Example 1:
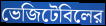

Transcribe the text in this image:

ভেজিটেবিলের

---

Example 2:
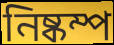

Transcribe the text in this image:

নিষ্কম্প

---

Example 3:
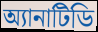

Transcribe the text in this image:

অ্যানাটিডি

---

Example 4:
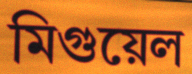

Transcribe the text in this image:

মিগুয়েল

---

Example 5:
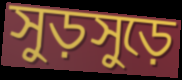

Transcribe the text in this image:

সুড়সুড়ে